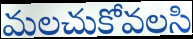
మలచుకోవలసి